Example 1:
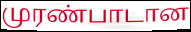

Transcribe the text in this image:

முரண்பாடான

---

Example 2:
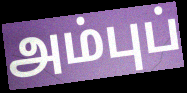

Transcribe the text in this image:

அம்புப்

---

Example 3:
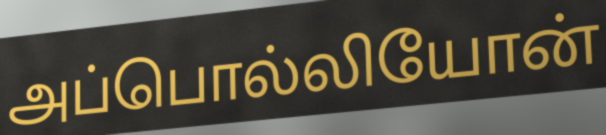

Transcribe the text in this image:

அப்பொல்லியோன்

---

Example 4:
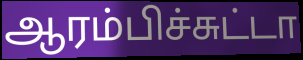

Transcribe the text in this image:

ஆரம்பிச்சுட்டா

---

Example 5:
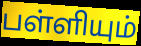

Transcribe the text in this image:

பள்ளியும்